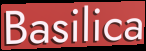
Basilica